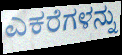
ಎಕರೆಗಳನ್ನು